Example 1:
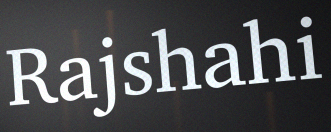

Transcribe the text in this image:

Rajshahi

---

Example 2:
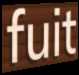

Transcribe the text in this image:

fuit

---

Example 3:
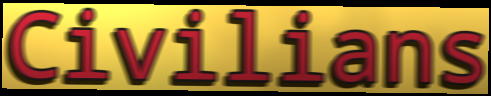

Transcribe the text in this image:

Civilians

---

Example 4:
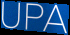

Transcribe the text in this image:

UPA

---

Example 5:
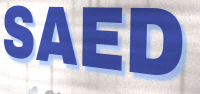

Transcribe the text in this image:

SAED